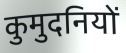
कुमुदनियों